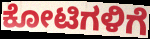
ಕೋಟಿಗಳಿಗೆ